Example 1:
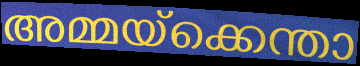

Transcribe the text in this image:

അമ്മയ്‌ക്കെന്താ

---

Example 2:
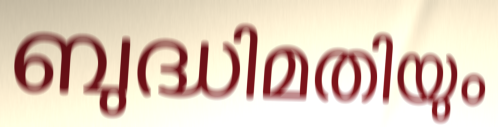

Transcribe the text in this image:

ബുദ്ധിമതിയും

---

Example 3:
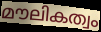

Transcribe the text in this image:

മൗലികത്വം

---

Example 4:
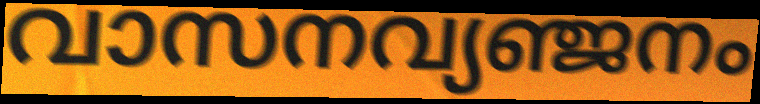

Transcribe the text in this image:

വാസനവ്യഞ്ജനം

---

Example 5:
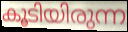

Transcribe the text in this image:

കൂടിയിരുന്ന